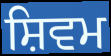
ਸ਼ਿਵਮ